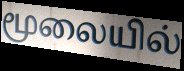
மூலையில்